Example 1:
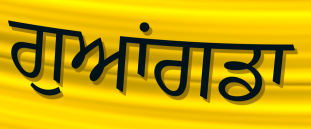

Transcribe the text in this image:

ਗੁਆਂਗਡਾ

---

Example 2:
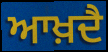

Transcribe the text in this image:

ਆਖ਼ਦੈ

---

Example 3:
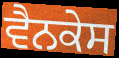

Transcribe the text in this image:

ਵੈਨਕੇਸ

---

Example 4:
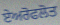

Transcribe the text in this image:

ਏਅਰੋਫਲੋਤ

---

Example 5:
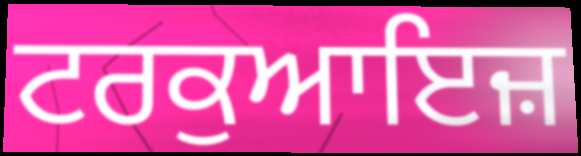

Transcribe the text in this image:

ਟਰਕੁਆਇਜ਼